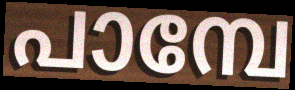
പാമ്പേ